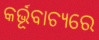
କର୍ଭୂବାଚ୍ୟରେ